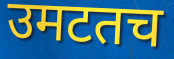
उमटतच